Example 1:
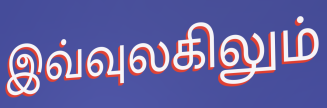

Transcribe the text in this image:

இவ்வுலகிலும்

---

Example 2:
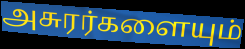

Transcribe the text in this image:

அசுரர்களையும்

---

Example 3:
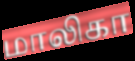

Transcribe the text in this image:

மாலிகா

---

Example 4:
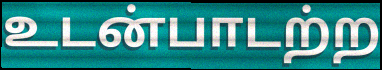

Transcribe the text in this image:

உடன்பாடற்ற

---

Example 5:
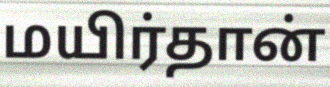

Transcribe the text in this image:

மயிர்தான்